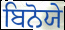
ਬਿਨੋਯੇ